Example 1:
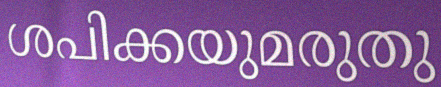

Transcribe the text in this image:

ശപിക്കയുമരുതു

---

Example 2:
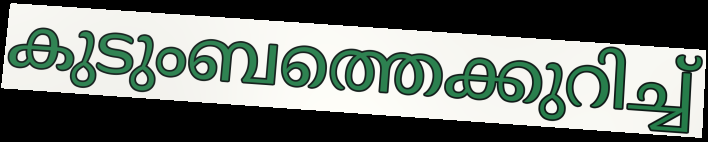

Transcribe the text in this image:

കുടുംബത്തെക്കുറിച്ച്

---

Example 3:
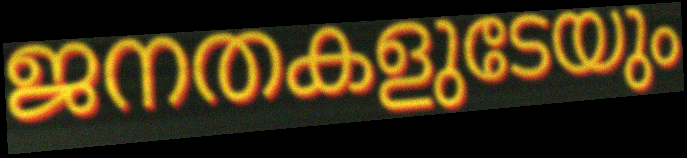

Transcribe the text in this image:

ജനതകളുടേയും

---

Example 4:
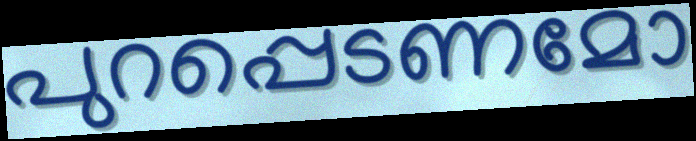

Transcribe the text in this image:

പുറപ്പെടണമോ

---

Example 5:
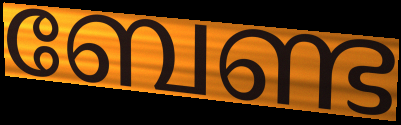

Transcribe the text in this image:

ബേണ്ട